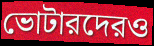
ভোটারদেরও